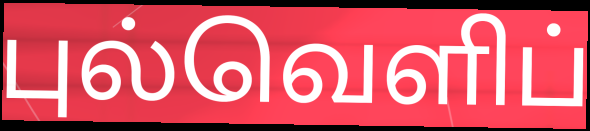
புல்வெளிப்